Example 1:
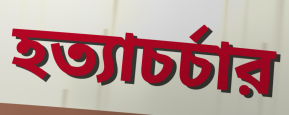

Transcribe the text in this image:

হত্যাচর্চার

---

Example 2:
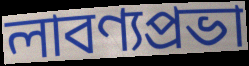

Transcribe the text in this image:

লাবণ্যপ্রভা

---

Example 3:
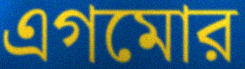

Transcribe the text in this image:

এগমোর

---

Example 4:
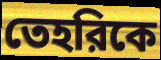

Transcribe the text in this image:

তেহরিকে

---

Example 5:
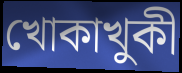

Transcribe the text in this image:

খোকাখুকী